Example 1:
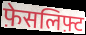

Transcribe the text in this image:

फ़ेसलिफ़्ट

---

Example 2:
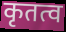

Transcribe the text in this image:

कृतत्व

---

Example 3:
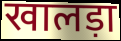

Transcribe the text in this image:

खालड़ा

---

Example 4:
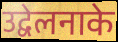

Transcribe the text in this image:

उद्वेलनाके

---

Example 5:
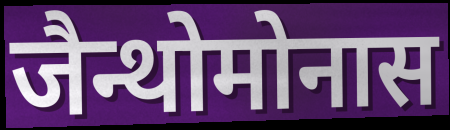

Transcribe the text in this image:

जैन्थोमोनास